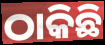
ଠାକିଛି